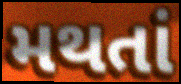
મથતાં